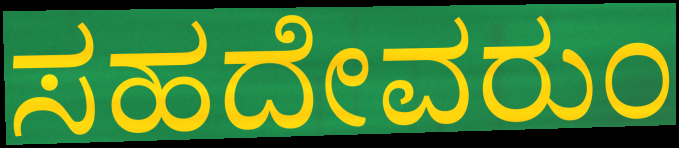
ಸಹದೇವರುಂ